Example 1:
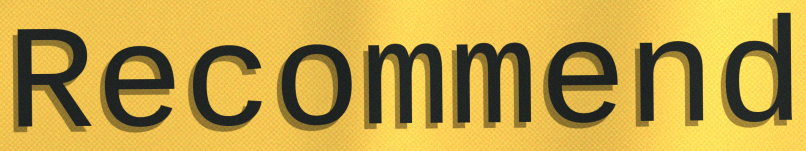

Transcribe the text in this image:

Recommend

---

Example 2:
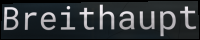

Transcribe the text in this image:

Breithaupt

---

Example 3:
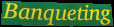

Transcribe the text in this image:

Banqueting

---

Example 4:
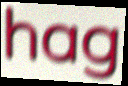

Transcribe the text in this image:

hag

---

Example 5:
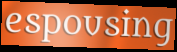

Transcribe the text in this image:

espousing